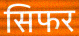
सिफर